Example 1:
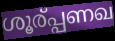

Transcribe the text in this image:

ശൂര്പ്പണഖ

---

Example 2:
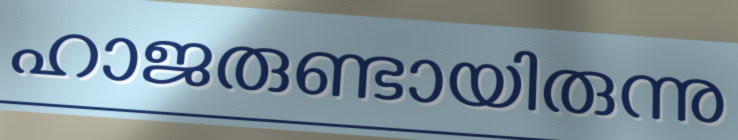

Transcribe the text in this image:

ഹാജരുണ്ടായിരുന്നു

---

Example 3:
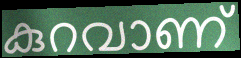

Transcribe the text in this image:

കുറവാണ്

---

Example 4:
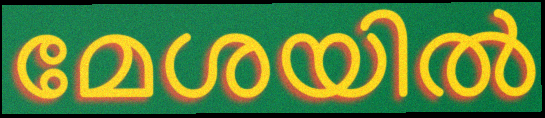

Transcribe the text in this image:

മേശയിൽ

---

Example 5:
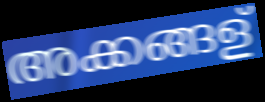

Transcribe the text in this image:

അക്കങ്ങള്